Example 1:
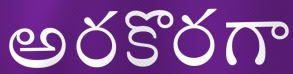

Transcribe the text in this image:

అరకొరగా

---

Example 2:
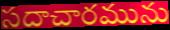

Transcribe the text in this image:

సదాచారమును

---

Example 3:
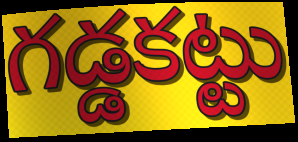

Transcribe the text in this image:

గడ్డకట్టు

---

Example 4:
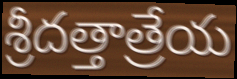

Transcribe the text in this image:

శ్రీదత్తాత్రేయ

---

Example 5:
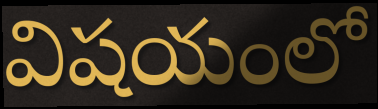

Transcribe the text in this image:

విషయంలో